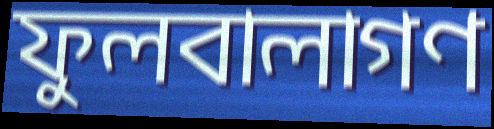
ফুলবালাগণ